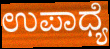
ಉಪಾಧ್ಯೆ